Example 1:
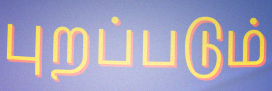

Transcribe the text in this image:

புறப்படும்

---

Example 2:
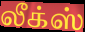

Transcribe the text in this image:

லீக்ஸ்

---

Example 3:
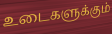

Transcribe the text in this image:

உடைகளுக்கும்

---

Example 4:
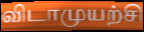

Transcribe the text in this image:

விடாமுயற்சி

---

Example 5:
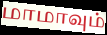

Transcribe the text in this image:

மாமாவும்